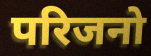
परिजनो